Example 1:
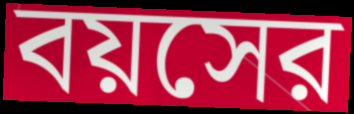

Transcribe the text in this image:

বয়সের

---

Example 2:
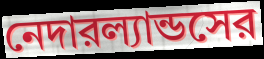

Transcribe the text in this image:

নেদারল্যান্ডসের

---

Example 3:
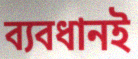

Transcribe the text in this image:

ব্যবধানই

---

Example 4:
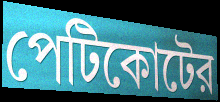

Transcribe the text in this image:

পেটিকোটের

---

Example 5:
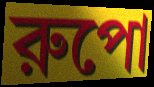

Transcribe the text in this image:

রুপো